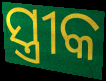
ସ୍ତ୍ରୀକ